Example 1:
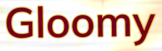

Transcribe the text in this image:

Gloomy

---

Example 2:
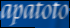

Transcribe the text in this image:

apatoto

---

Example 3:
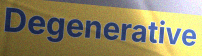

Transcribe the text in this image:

Degenerative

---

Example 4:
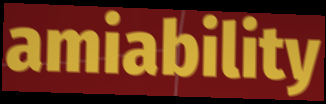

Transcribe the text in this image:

amiability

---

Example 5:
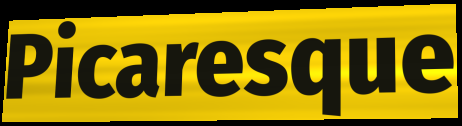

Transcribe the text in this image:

Picaresque